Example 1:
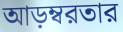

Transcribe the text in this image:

আড়ম্বরতার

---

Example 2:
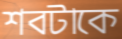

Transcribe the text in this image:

শবটাকে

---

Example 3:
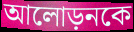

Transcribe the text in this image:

আলোড়নকে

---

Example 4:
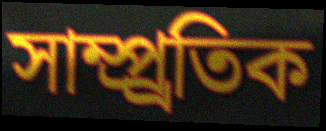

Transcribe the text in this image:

সাম্প্র্রতিক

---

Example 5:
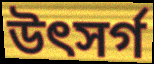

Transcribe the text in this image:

উৎসর্গ